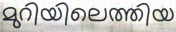
മുറിയിലെത്തിയ